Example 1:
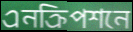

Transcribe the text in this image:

এনক্রিপশনে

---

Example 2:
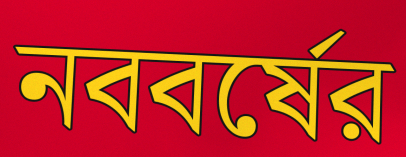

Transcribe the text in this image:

নববর্ষের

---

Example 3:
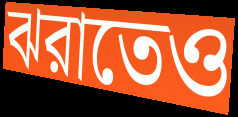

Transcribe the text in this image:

ঝরাতেও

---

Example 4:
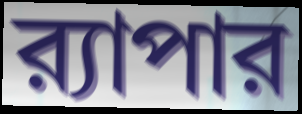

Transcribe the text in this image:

র‍্যাপার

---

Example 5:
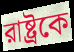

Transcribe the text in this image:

রাষ্ট্রকে